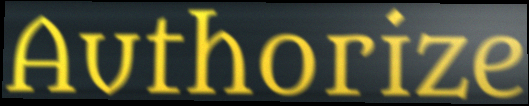
Authorize